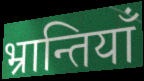
भ्रान्तियाँ